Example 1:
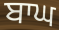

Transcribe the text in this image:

ਬਾਘ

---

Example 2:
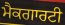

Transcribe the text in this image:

ਮੈਕਗਾਰਟੀ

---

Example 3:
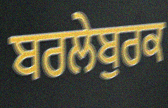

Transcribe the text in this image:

ਬਰਲੇਬੁਰਕ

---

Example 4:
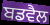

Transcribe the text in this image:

ਬਡਵੈਲ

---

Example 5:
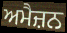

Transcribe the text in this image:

ਅਮੈਜ਼ਨ